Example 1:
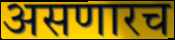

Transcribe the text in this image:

असणारच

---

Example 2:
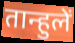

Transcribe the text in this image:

तान्हुलें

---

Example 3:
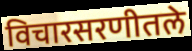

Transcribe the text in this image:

विचारसरणीतले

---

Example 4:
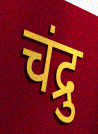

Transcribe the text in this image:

चंद्रु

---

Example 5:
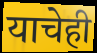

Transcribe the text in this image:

याचेही